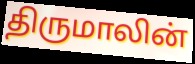
திருமாலின்